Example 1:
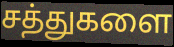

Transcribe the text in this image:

சத்துகளை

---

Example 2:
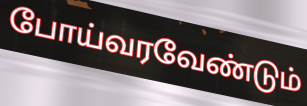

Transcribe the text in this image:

போய்வரவேண்டும்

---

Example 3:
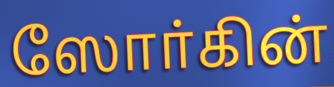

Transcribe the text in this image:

ஸோர்கின்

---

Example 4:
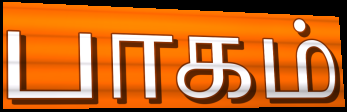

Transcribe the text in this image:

பாகம்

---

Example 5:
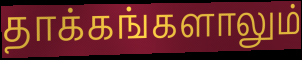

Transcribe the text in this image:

தாக்கங்களாலும்